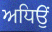
ਅਧਿਉਂ